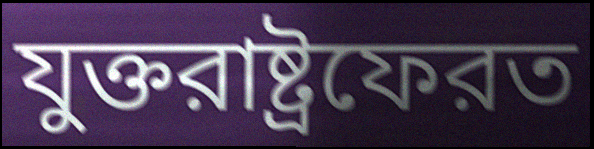
যুক্তরাষ্ট্রফেরত